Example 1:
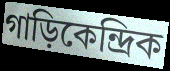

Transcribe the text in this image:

গাড়িকেন্দ্রিক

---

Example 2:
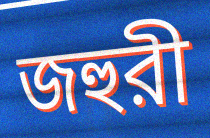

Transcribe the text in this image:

জহুরী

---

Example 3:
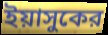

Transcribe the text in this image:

ইয়াসুকের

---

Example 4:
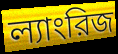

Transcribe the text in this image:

ল্যাংরিজ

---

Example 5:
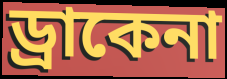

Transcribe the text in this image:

ড্রাকেনা